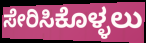
ಸೇರಿಸಿಕೊಳ್ಳಲು